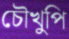
চৌখুপি